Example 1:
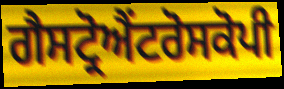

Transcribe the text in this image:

ਗੈਸਟ੍ਰੋਐਂਟਰੋਸਕੋਪੀ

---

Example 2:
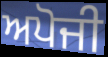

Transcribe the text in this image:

ਅਪੋਜੀ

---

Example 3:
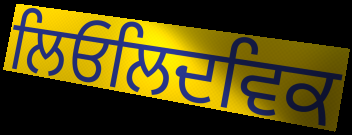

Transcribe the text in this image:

ਲਿਓਲਿਦਵਿਕ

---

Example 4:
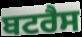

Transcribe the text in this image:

ਬਟਰੈਸ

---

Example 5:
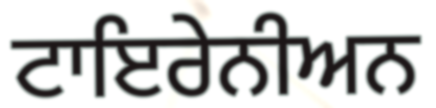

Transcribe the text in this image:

ਟਾਇਰੇਨੀਅਨ